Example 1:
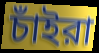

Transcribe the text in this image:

চাঁইরা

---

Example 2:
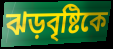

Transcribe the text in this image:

ঝড়বৃষ্টিকে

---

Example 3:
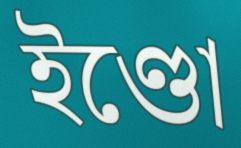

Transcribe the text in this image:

ইণ্ডো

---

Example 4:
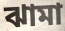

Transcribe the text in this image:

ঝামা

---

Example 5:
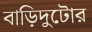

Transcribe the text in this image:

বাড়িদুটোর